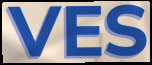
VES